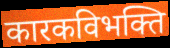
कारकविभक्ति